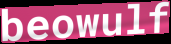
beowulf